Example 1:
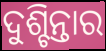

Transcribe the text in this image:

ଦୁଶ୍ଚିନ୍ତାର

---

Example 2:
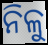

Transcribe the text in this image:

ନିଳୁ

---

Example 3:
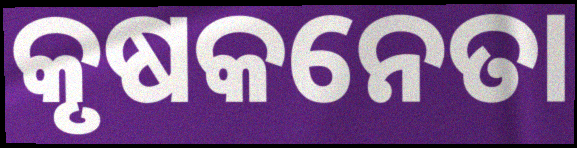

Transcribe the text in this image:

କୃଷକନେତା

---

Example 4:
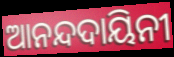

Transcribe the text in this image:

ଆନନ୍ଦଦାୟିନୀ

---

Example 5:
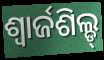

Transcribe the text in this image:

ଶ୍ୱାର୍ଜଶିଲ୍ଡ୍